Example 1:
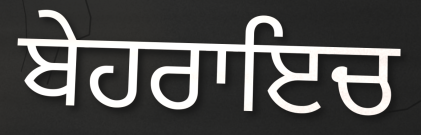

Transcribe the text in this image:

ਬੇਹਰਾਇਚ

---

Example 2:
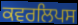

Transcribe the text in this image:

ਕਵਰਲਿਪਸ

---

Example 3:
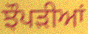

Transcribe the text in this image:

ਝੌਪੜੀਆਂ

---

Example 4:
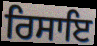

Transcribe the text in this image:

ਰਿਸਾਇ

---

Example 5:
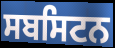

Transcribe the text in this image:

ਸਬਸਿਟਨ